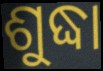
ଶୁଦ୍ଧା